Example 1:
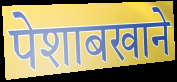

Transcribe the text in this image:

पेशाबखाने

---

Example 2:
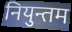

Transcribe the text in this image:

नियुन्तम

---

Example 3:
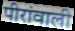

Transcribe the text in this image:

पीरांवाली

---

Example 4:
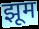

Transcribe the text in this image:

झूम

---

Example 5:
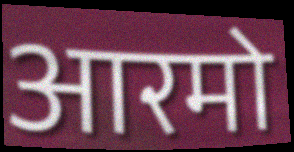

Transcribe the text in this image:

आरमो